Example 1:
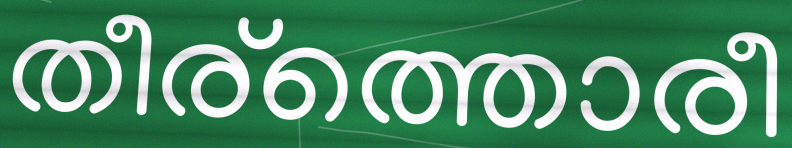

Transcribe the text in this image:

തീര്ത്തൊരീ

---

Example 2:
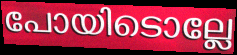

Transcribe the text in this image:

പോയിടൊല്ലേ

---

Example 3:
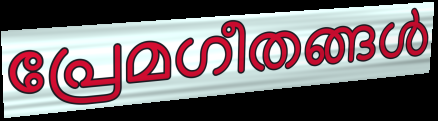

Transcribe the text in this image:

പ്രേമഗീതങ്ങൾ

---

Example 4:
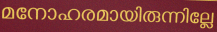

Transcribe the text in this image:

മനോഹരമായിരുന്നില്ലേ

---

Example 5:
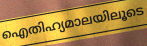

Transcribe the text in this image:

ഐതിഹ്യമാലയിലൂടെ